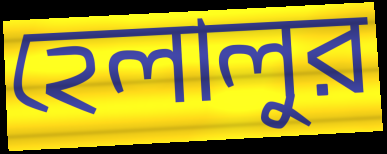
হেলালুর